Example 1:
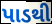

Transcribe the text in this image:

પાડથી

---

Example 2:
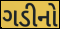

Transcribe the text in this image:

ગડીનો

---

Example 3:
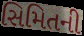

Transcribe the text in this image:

સિમિતની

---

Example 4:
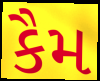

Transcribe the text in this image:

કૈમ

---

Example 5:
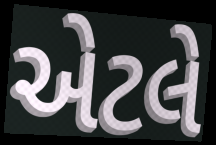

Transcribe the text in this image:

એટલે